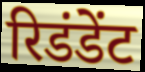
रिडंडेंट